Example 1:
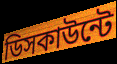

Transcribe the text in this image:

ডিসকাউন্টে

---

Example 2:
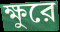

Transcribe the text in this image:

ক্ষুরে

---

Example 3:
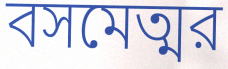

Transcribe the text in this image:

বসমেত্মর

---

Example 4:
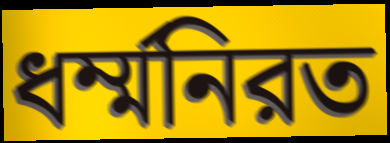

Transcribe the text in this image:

ধর্ম্মনিরত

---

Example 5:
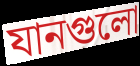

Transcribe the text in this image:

যানগুলো